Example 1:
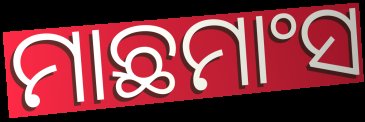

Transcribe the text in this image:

ମାଛମାଂସ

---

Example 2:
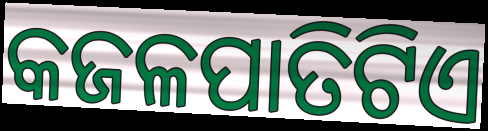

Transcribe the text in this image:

କଜଳପାତିଟିଏ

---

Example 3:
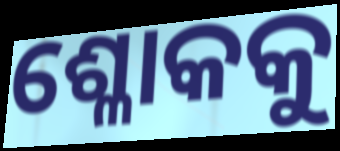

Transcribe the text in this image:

ଶ୍ଳୋକକୁ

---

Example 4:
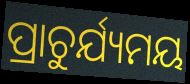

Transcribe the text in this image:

ପ୍ରାଚୁର୍ଯ୍ୟମୟ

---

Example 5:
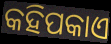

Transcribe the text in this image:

କହିପକାଏ